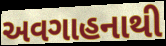
અવગાહનાથી